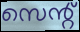
സെന്റ്